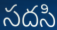
సదసి